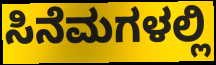
ಸಿನೆಮಗಳಲ್ಲಿ